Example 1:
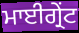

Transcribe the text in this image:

ਮਾਈਗ੍ਰੇਂਟ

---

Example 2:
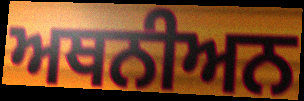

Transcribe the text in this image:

ਅਥਨੀਅਨ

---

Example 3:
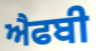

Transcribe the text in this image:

ਐਫਬੀ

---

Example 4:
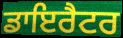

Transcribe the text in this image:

ਡਾਇਰੈਟਰ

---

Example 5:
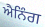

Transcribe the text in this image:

ਐਨਿੰਗ